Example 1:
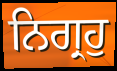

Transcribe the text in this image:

ਨਿਗ੍ਰਹੁ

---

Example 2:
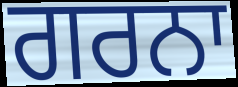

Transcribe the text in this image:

ਗਰਨਾ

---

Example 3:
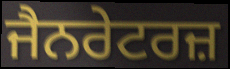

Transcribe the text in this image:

ਜੈਨਰੇਟਰਜ਼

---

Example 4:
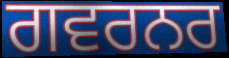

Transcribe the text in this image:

ਗਵਰਨਰ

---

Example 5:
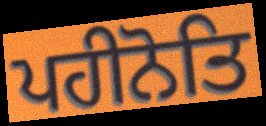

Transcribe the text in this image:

ਪਹੀਨੋਤਿ